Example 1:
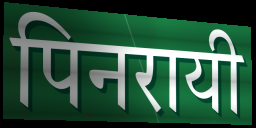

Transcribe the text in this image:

पिनरायी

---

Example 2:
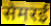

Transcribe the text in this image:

सेमरई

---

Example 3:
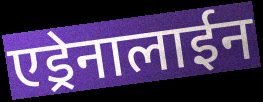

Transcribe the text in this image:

एड्रेनालाईन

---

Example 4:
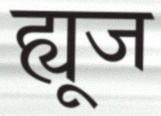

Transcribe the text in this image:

ह्यूज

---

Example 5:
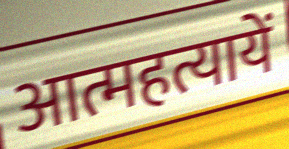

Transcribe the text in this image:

आत्महत्यायें